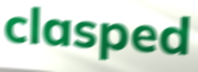
clasped